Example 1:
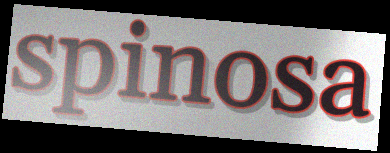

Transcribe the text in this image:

spinosa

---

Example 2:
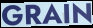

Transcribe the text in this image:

GRAIN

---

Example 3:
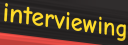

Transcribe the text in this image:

interviewing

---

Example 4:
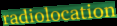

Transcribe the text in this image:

radiolocation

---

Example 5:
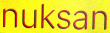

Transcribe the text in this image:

nuksan